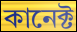
কানেক্ট